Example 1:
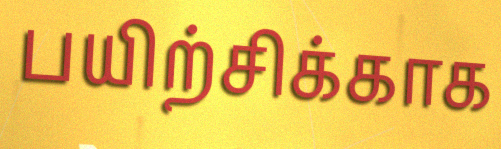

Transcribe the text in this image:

பயிற்சிக்காக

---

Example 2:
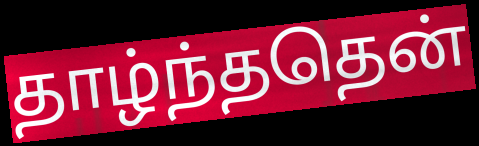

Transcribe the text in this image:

தாழ்ந்ததென்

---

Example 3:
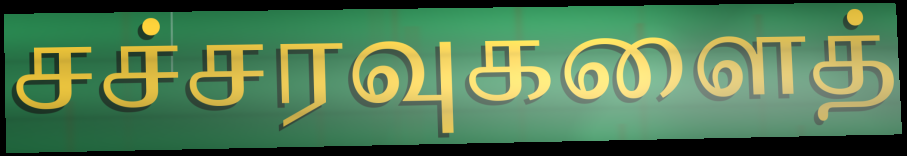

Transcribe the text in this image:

சச்சரவுகளைத்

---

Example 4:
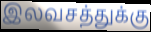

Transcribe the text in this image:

இலவசத்துக்கு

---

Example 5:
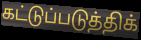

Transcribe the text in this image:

கட்டுப்படுத்திக்